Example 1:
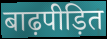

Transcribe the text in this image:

बाढ़पीड़ित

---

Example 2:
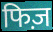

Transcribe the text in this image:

फिज़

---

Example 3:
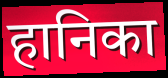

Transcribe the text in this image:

हानिका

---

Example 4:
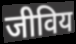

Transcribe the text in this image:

जीविय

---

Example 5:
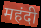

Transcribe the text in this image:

महंदी